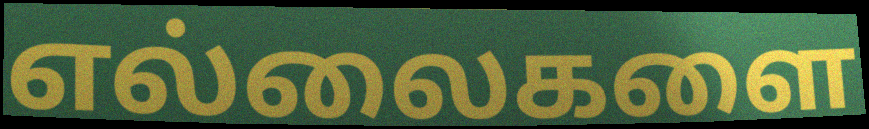
எல்லைகளை